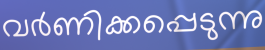
വർണിക്കപ്പെടുന്നു